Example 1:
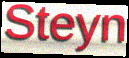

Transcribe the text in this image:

Steyn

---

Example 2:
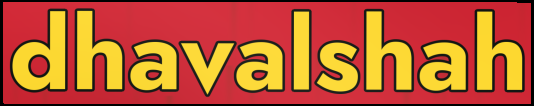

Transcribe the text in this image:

dhavalshah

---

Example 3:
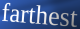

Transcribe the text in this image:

farthest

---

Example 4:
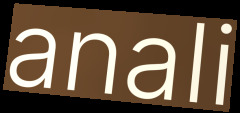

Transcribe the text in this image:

anali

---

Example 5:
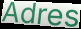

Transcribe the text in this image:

Adres